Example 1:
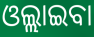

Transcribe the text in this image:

ଓଲ୍ଲାଇବା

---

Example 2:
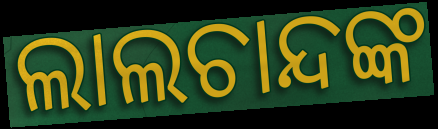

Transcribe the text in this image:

ଲାଲଚାନ୍ଦଙ୍କ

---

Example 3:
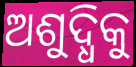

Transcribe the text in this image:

ଅଶୁଦ୍ଧିକୁ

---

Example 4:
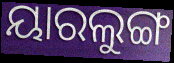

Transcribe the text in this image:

ୟାରଲୁଙ୍ଗ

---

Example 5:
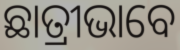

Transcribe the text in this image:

ଛାତ୍ରୀଭାବେ